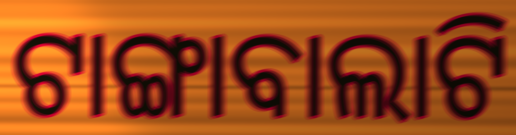
ଟାଙ୍ଗାବାଲାଟି